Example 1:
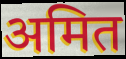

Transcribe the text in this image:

अमित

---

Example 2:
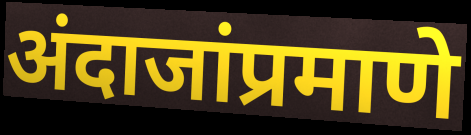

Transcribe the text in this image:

अंदाजांप्रमाणे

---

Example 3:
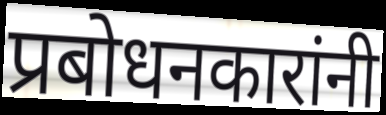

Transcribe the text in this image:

प्रबोधनकारांनी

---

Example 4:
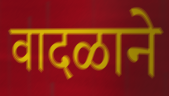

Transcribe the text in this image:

वादळाने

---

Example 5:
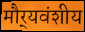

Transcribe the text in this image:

मौर्यवंशीय